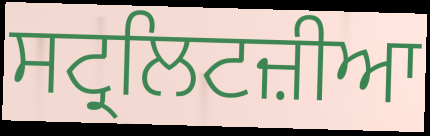
ਸਟ੍ਰਲਿਟਜ਼ੀਆ